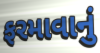
ફરમાવાનું